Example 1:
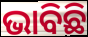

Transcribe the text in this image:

ଭାବିଛି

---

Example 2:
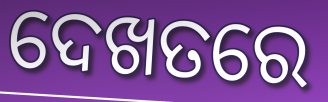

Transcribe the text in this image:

ଦେଖତରେ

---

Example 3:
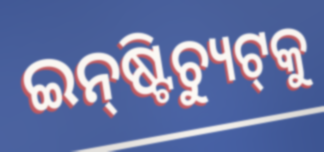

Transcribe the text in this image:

ଇନ୍‌ଷ୍ଟିଚ୍ୟୁଟ୍‌କୁ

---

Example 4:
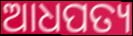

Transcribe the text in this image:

ଆଧପତ୍ୟ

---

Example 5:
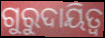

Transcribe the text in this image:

ଗୁରୁଦାୟିତ୍ୱ